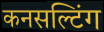
कनसल्टिंग